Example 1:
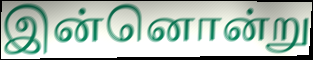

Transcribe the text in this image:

இன்னொன்று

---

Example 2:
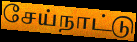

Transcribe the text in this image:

சேய்நாட்டு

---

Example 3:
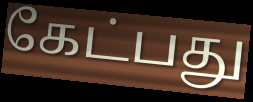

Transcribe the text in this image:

கேட்பது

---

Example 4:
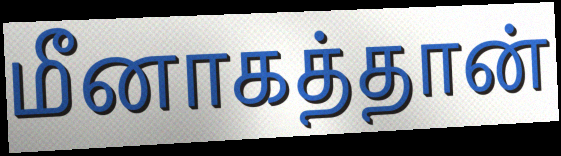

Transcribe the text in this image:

மீனாகத்தான்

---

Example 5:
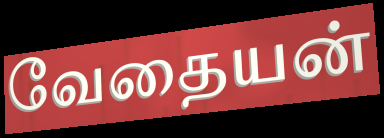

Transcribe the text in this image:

வேதையன்